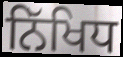
ਨਿੱਖਿਧ